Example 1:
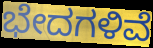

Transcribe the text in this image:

ಭೇದಗಳಿವೆ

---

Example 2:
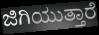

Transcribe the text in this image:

ಜಿಗಿಯುತ್ತಾರೆ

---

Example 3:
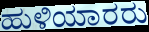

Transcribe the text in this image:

ಹುಳಿಯಾರರು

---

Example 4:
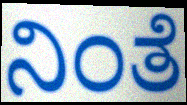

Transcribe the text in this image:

ನಿಂತೆ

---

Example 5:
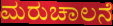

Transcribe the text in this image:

ಮರುಚಾಲನೆ